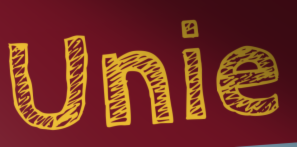
Unie